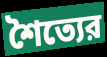
শৈত্যের